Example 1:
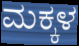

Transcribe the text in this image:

ಮಕ್ಕಳ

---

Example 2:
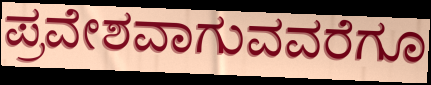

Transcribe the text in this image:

ಪ್ರವೇಶವಾಗುವವರೆಗೂ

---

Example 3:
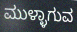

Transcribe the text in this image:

ಮುಳ್ಳಾಗುವ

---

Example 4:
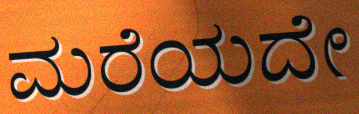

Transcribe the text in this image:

ಮರೆಯದೇ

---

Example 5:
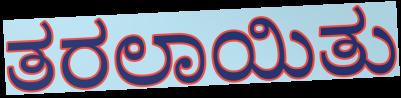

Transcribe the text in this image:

ತರಲಾಯಿತು